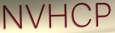
NVHCP